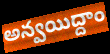
అన్వయిద్దాం